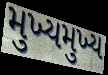
મુખ્યમુખ્ય